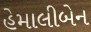
હેમાલીબેન